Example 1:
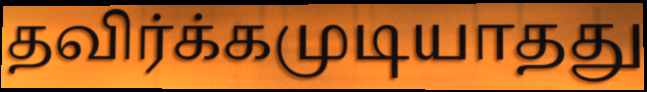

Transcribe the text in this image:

தவிர்க்கமுடியாதது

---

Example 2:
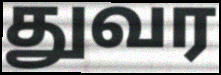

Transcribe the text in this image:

துவர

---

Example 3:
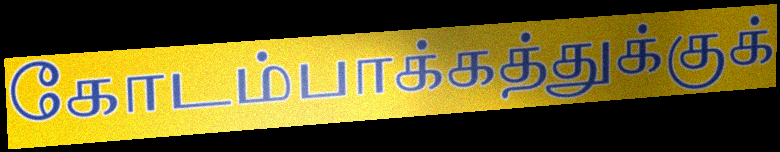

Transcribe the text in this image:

கோடம்பாக்கத்துக்குக்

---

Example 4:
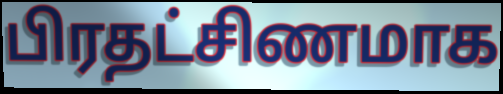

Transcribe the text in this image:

பிரதட்சிணமாக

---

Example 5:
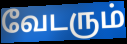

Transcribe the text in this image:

வேடரும்